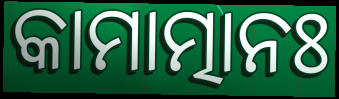
କାମାତ୍ମାନଃ